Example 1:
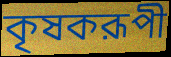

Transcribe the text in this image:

কৃষকরূপী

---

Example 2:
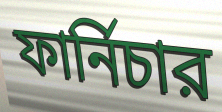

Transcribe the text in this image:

ফার্নিচার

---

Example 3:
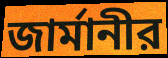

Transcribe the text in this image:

জার্মানীর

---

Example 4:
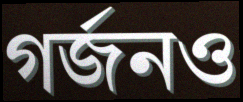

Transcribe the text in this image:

গর্জনও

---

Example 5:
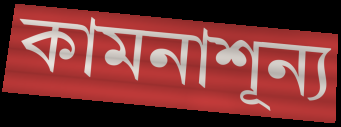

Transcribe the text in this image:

কামনাশূন্য